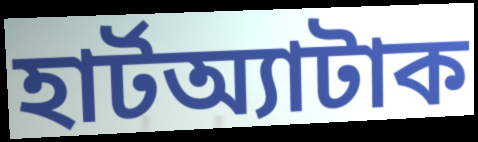
হার্টঅ্যাটাক